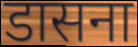
डासना